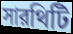
সারথিটি